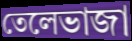
তেলেভাজা